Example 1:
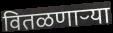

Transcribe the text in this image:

वितळणाऱ्या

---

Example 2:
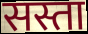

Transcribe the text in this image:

सस्ता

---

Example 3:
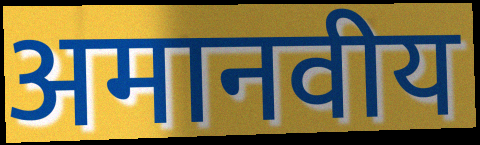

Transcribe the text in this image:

अमानवीय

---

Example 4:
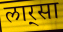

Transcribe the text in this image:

लार्सा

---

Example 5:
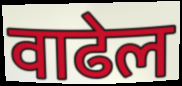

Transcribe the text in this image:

वाढेल